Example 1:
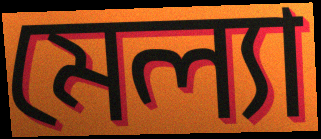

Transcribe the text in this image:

মেল্যা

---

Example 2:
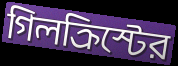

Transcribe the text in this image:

গিলক্রিস্টের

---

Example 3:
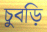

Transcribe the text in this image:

চুবড়ি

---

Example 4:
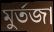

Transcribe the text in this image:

মুর্তজা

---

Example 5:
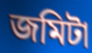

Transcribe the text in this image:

জমিটা